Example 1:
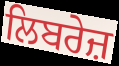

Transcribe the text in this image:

ਲਿਬਰੇਜ਼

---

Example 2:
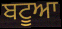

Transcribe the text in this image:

ਬਟੂਆ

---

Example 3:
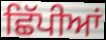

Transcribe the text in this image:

ਛਿੱਪੀਆਂ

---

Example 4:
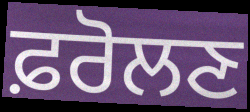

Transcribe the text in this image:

ਫ਼ਰੋਲਣ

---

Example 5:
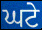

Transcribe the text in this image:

ਘਟੇ